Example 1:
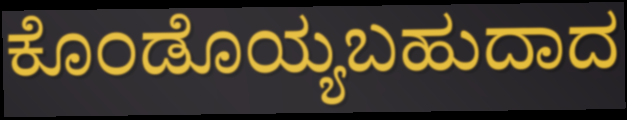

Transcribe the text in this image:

ಕೊಂಡೊಯ್ಯಬಹುದಾದ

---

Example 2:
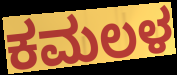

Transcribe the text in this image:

ಕಮಲಳ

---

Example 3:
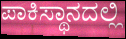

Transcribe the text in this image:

ಪಾಕಿಸ್ಥಾನದಲ್ಲಿ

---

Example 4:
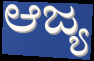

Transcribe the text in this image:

ಆಜ್ಯ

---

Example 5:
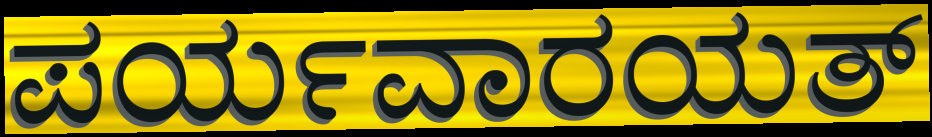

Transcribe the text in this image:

ಪರ್ಯವಾರಯತ್